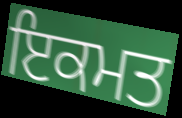
ਇਕਮਤ